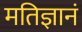
मतिज्ञानं